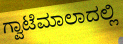
ಗ್ವಾಟೆಮಾಲಾದಲ್ಲಿ